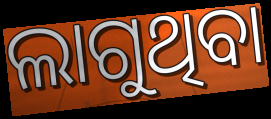
ଲାଗୁଥିବା